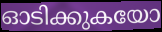
ഓടിക്കുകയോ